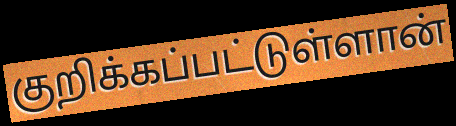
குறிக்கப்பட்டுள்ளான்